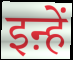
इऩ्हें